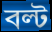
বল্ট